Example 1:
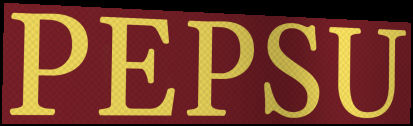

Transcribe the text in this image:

PEPSU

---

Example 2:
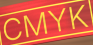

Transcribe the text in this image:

CMYK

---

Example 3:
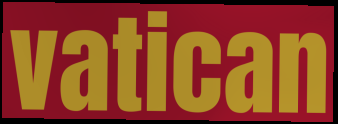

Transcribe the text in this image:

vatican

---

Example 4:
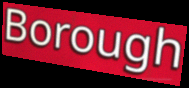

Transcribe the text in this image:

Borough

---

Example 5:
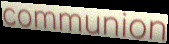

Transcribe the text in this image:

communion